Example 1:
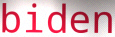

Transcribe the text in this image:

biden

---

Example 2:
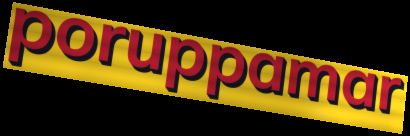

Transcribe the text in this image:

poruppamar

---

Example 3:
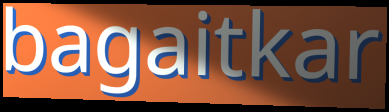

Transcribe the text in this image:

bagaitkar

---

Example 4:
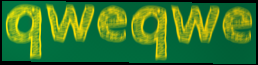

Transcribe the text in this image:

qweqwe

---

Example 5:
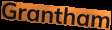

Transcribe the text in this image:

Grantham